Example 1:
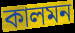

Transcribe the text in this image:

কালমন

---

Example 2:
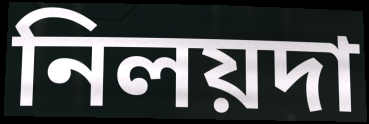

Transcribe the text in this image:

নিলয়দা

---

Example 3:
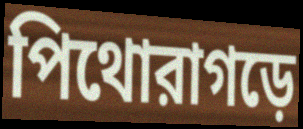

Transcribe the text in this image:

পিথোরাগড়ে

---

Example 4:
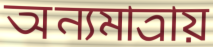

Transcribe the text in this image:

অন্যমাত্রায়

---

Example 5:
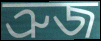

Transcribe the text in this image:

ত্রুজ